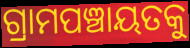
ଗ୍ରାମପଞ୍ଚାୟତକୁ